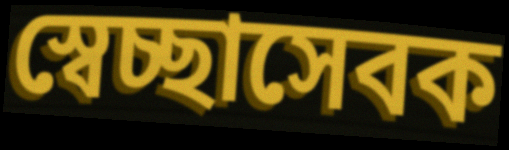
স্বেচ্ছাসেবক